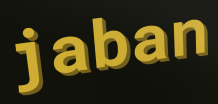
jaban